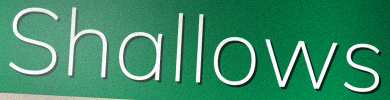
Shallows